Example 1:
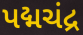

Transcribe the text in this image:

પદ્મચંદ્ર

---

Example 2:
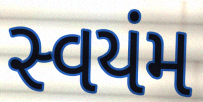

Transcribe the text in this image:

સ્વયંમ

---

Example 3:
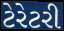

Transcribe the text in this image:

ટેરેટરી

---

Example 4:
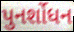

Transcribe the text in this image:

પુનર્શોધન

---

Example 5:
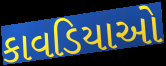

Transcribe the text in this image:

કાવડિયાઓ